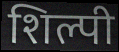
शिल्‍पी